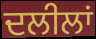
ਦਲੀਲਾਂ